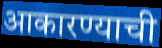
आकारण्याची